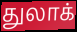
துலாக்